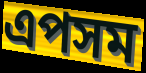
এপসম